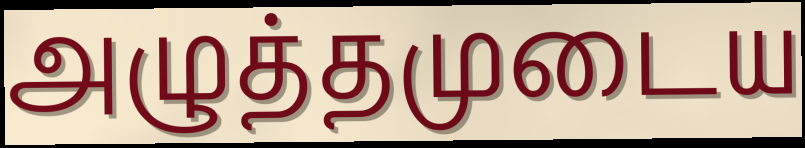
அழுத்தமுடைய